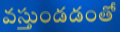
వస్తుండడంతో